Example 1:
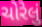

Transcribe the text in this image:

ચોરેલું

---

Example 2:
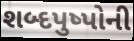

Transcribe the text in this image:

શબ્દપુષ્પોની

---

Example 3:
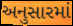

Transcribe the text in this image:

અનુસારમાં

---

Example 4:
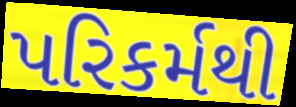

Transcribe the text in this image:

પરિકર્મથી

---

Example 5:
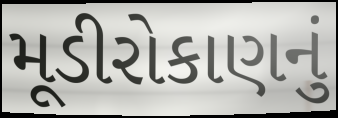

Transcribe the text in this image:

મૂડીરોકાણનું